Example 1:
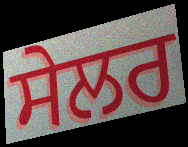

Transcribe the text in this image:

ਸੇਲਰ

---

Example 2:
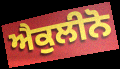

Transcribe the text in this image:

ਐਕੁਲੀਨੋ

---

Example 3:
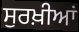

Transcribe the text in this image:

ਸੁਰਖ਼ੀਆਂ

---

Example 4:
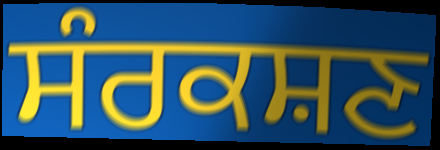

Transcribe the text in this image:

ਸੰਰਕਸ਼ਣ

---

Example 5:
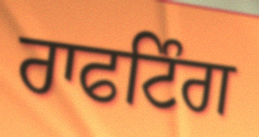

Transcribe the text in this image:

ਰਾਫਟਿੰਗ